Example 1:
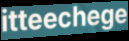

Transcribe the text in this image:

itteechege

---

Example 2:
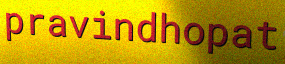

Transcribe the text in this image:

pravindhopat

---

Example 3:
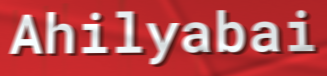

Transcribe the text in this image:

Ahilyabai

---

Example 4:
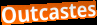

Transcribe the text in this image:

Outcastes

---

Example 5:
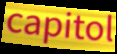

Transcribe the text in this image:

capitol